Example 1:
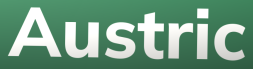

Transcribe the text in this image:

Austric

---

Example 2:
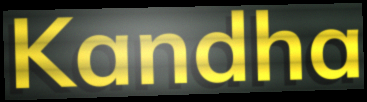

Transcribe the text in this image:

Kandha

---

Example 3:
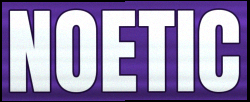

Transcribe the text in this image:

NOETIC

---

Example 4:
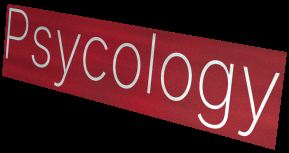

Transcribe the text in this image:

Psycology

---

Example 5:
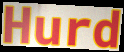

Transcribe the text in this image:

Hurd